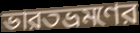
ভারতভ্রমণের